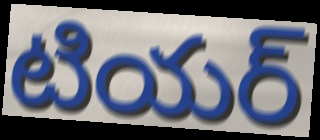
టియర్